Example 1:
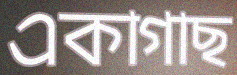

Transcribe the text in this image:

একাগাছ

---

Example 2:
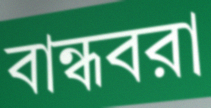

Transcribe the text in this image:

বান্ধবরা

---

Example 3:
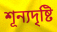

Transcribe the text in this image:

শূন্যদৃষ্টি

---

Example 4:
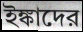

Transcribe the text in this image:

ইঙ্কাদের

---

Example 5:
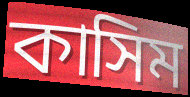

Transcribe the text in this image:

কাসিম